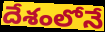
దేశంలోనే